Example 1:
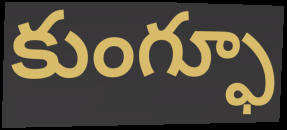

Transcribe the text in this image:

కుంగ్ఫూ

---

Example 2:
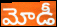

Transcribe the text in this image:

మోడీ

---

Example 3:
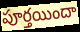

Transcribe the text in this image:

పూర్తయిందా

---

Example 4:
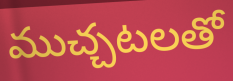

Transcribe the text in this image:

ముచ్చటలతో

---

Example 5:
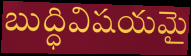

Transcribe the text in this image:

బుద్ధివిషయమై